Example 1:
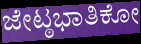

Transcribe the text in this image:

ಜೇಟ್ಠಭಾತಿಕೋ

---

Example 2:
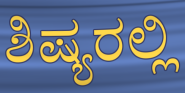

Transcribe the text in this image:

ಶಿಷ್ಯರಲ್ಲಿ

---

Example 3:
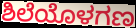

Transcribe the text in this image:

ಶಿಲೆಯೊಳಗಣ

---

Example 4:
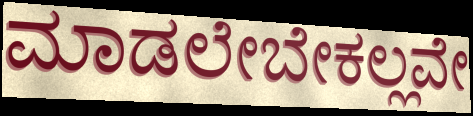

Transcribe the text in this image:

ಮಾಡಲೇಬೇಕಲ್ಲವೇ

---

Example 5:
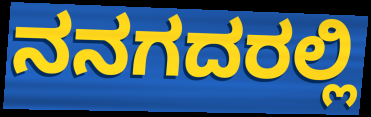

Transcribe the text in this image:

ನನಗದರಲ್ಲಿ